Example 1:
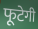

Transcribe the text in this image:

फूटेगी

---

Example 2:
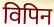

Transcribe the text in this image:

विपिन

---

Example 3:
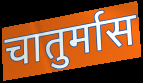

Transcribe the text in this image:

चातुर्मास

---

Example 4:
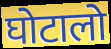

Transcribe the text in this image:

घोटालो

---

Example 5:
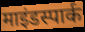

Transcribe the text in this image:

माइंडस्पार्क